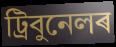
ট্ৰিবুনেলৰ